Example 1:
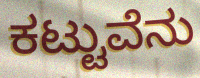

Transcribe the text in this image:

ಕಟ್ಟುವೆನು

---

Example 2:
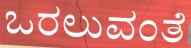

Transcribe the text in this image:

ಒರಲುವಂತೆ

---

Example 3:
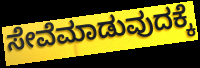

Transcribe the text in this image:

ಸೇವೆಮಾಡುವುದಕ್ಕೆ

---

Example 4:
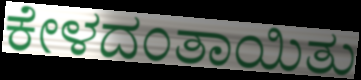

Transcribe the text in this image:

ಕೇಳದಂತಾಯಿತು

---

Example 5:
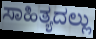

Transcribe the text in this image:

ಸಾಹಿತ್ಯದಲ್ಲು